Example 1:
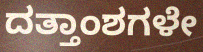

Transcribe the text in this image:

ದತ್ತಾಂಶಗಳೇ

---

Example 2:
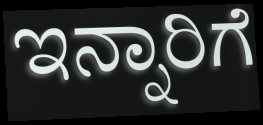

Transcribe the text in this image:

ಇನ್ನಾರಿಗೆ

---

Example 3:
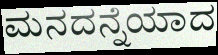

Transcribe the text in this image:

ಮನದನ್ನೆಯಾದ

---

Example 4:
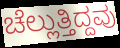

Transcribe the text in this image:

ಚೆಲ್ಲುತ್ತಿದ್ದವು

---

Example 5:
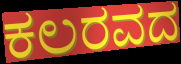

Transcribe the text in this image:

ಕಲರವದ